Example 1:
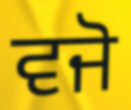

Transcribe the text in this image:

ਵਜੋ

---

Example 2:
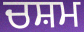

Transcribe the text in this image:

ਚਸ਼ਮ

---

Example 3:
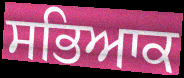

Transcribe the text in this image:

ਸਭਿਆਕ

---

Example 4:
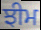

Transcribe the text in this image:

ਝੀਮ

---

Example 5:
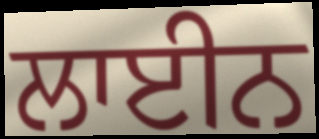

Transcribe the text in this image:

ਲਾਈਨ